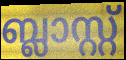
ബ്ലാസ്റ്റ്